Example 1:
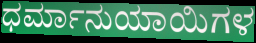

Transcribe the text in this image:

ಧರ್ಮಾನುಯಾಯಿಗಳ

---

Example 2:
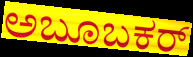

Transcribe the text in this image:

ಅಬೂಬಕರ್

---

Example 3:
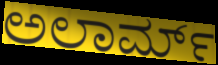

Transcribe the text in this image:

ಅಲಾರ್ಮ್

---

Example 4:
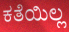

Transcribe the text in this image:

ಕತೆಯಿಲ್ಲ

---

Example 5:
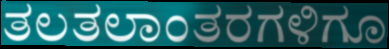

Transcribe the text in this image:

ತಲತಲಾಂತರಗಳಿಗೂ